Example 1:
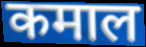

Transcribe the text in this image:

कमाल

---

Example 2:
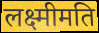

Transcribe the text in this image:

लक्ष्मीमति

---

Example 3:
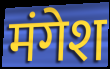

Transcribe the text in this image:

मंगेश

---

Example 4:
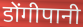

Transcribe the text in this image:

डोंगीपानी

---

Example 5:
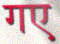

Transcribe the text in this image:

गए